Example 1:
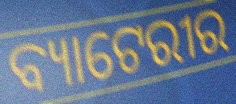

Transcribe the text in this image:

ବ୍ୟାଟେରୀର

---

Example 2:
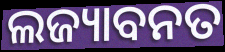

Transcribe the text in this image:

ଲଜ୍ୟାବନତ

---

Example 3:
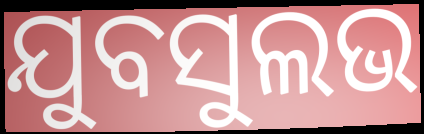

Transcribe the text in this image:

ଯୁବସୁଲଭ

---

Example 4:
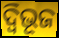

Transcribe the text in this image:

ଦ୍ବିଭୂଜ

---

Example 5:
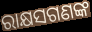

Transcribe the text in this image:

ରାକ୍ଷସଗଣଙ୍କ